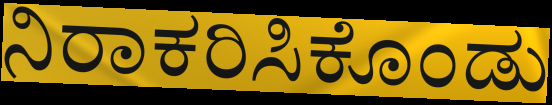
ನಿರಾಕರಿಸಿಕೊಂಡು